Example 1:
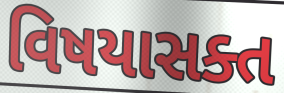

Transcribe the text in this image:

વિષયાસક્ત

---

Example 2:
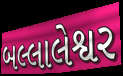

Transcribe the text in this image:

બલ્લાલેશ્વર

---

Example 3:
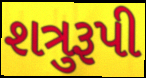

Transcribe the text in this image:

શત્રુરૂપી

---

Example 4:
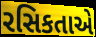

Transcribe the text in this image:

રસિકતાએ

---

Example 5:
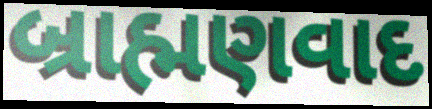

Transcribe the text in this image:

બ્રાહ્મણવાદ